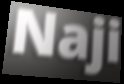
Naji